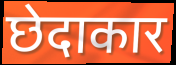
छेदाकार